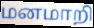
மனமாறி